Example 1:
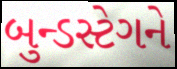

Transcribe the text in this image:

બુન્ડસ્ટેગને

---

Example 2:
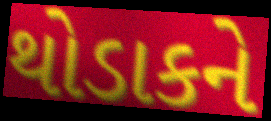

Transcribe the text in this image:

થોડાકને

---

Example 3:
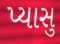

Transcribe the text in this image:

પ્યાસુ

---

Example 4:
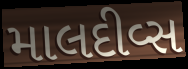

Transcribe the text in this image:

માલદીવ્સ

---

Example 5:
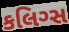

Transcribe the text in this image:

કલિગ્સ